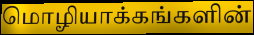
மொழியாக்கங்களின்